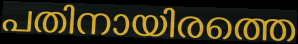
പതിനായിരത്തെ